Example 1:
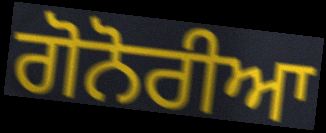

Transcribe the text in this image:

ਗੋਨੋਰੀਆ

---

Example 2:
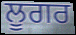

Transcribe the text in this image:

ਲੂਗਰ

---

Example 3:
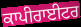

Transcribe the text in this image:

ਕਾਪੀਰਾਈਟਰ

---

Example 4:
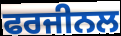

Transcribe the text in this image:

ਫਰਜੀਨਲ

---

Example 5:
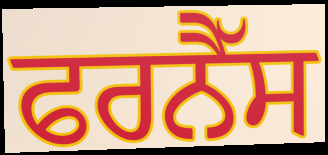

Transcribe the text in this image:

ਫਰਨੈੱਸ